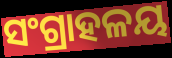
ସଂଗ୍ରାହଳୟ